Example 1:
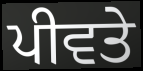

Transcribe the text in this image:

ਪੀਵਤੇ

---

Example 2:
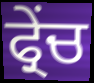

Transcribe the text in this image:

ਫ੍ਰੇਂਚ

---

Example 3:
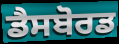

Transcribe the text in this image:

ਡੈਸਬੋਰਡ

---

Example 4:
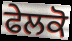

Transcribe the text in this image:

ਫੇਲਕੋ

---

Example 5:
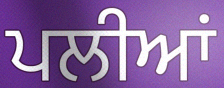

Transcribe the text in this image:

ਪਲੀਆਂ